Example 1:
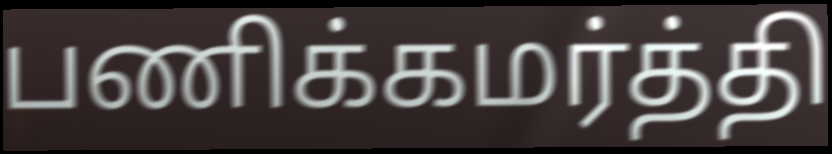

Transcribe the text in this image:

பணிக்கமர்த்தி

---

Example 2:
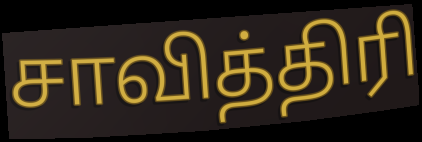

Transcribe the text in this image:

சாவித்திரி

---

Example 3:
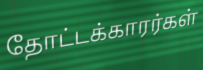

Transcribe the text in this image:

தோட்டக்காரர்கள்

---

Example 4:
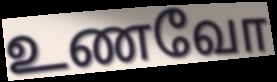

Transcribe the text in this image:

உணவோ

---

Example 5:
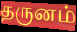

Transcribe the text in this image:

தருனம்